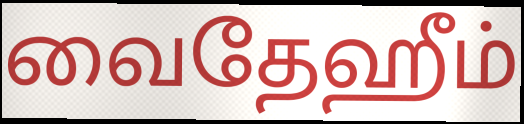
வைதேஹீம்